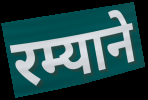
रम्याने